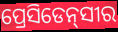
ପ୍ରେସିଡେନ୍‌ସୀର